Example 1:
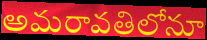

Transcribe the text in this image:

అమరావతిలోనూ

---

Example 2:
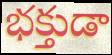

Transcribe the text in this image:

భక్తుడా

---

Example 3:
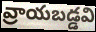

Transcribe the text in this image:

వ్రాయబడ్డవి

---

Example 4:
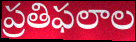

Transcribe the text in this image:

ప్రతిఫలాల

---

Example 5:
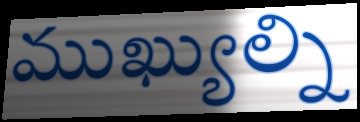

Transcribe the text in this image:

ముఖ్యుల్ని